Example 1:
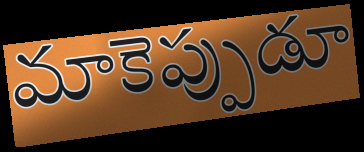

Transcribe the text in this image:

మాకెప్పుడూ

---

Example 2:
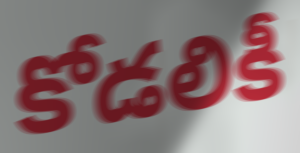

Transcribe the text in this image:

కోడలికీ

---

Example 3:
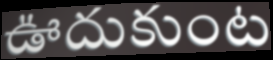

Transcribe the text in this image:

ఊదుకుంట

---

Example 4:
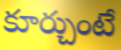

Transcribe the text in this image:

కూర్చుంటే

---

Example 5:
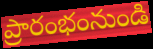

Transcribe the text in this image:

ప్రారంభంనుండి